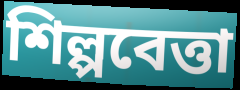
শিল্পবেত্তা